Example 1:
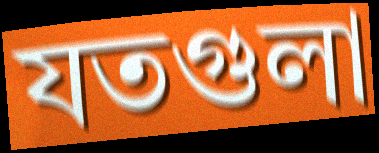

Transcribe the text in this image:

যতগুলা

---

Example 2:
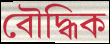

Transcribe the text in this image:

বৌদ্ধিক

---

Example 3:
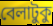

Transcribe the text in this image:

বেলাটুকু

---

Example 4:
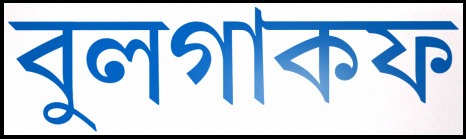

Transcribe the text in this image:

বুলগাকফ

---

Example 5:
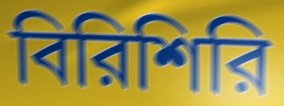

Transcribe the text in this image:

বিরিশিরি